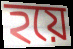
হয়ে